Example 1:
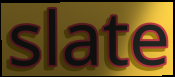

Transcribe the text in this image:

slate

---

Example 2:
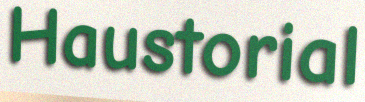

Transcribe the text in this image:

Haustorial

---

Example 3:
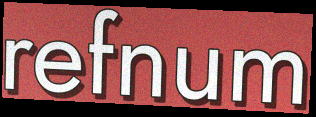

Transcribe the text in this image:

refnum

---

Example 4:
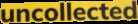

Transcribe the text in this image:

uncollected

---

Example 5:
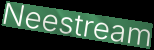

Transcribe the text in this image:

Neestream